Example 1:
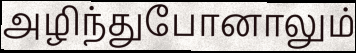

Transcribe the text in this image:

அழிந்துபோனாலும்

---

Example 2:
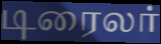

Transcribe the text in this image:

டிரைலர்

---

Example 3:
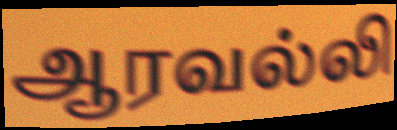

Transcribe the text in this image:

ஆரவல்லி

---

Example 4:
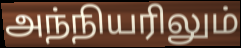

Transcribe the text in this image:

அந்நியரிலும்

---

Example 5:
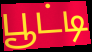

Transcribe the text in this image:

பூட்டி